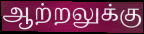
ஆற்றலுக்கு